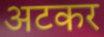
अटकर